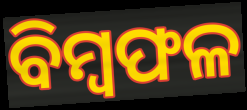
ବିମ୍ୱଫଳ